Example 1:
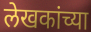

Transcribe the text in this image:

लेखकांच्या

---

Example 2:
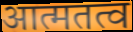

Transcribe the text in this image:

आत्मतत्व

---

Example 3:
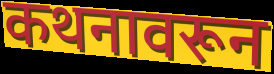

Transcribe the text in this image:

कथनावरून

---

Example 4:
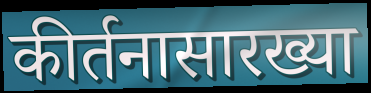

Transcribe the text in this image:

कीर्तनासारख्या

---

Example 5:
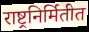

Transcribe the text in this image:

राष्ट्रनिर्मितीत